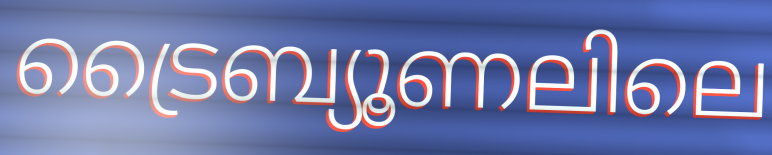
ട്രൈബ്യൂണലിലെ